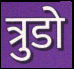
त्रुडो